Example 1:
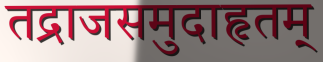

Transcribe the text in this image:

तद्राजसमुदाहृतम्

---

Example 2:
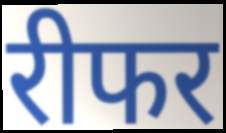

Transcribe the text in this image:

रीफर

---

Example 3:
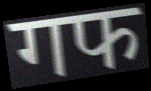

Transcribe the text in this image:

गफ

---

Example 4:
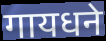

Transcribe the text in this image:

गायधने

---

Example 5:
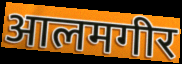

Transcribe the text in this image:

आलमगीर